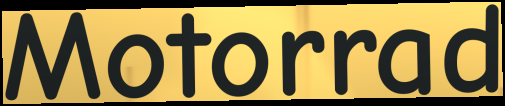
Motorrad